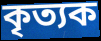
কৃত্যক